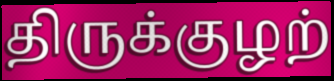
திருக்குழற்